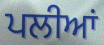
ਪਲੀਆਂ